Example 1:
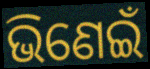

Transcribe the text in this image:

ଭିଣେଇଁ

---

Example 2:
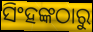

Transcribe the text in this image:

ସିଂହଙ୍କଠାରୁ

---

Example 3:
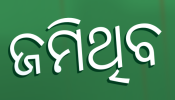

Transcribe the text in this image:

ଜମିଥିବ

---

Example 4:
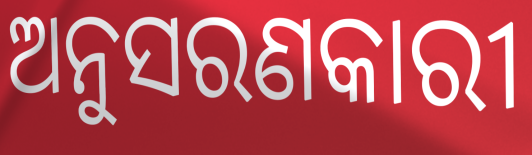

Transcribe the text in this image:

ଅନୁସରଣକାରୀ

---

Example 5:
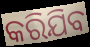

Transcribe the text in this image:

କରିଯିବ